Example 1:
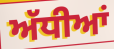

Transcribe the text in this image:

ਅੱਧੀਆਂ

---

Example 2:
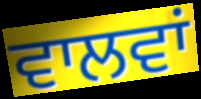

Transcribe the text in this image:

ਵਾਲਵਾਂ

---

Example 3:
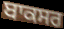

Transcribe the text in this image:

ਬਾਕਸਰ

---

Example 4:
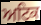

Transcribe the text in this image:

ਅਟਿਕ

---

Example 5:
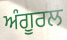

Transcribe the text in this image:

ਅੰਗੂਰਲ